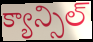
క్యాన్సిల్